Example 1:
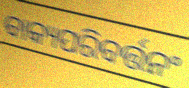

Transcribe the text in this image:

ବାକ୍ୟପରିବର୍ତ୍ତନଂ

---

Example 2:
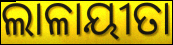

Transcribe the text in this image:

ଲାଳାୟୀତା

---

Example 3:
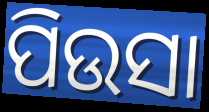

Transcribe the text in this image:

ପିଉସା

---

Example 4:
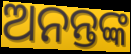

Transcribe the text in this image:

ଅନନ୍ତଙ୍କ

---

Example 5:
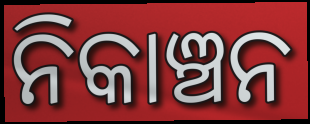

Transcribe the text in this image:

ନିକାଞ୍ଚନ